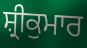
ਸ਼੍ਰੀਕੁਮਾਰ